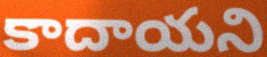
కాదాయని